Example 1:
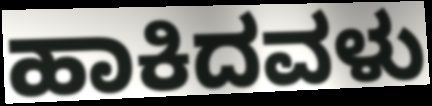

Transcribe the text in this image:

ಹಾಕಿದವಳು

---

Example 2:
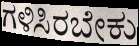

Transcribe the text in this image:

ಗಳಿಸಿರಬೇಕು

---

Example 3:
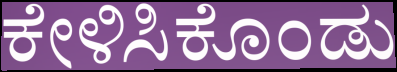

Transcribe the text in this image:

ಕೇಳಿಸಿಕೊಂಡು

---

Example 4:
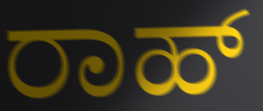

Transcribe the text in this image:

ರಾಹ್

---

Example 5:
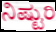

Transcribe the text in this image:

ನಿಷ್ಟುರಿ